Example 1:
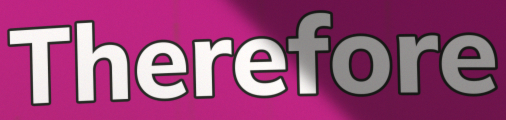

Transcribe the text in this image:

Therefore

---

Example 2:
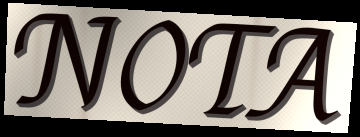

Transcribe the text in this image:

NOTA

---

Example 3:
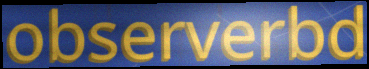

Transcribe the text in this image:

observerbd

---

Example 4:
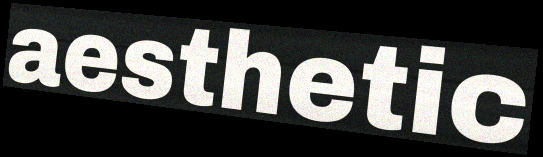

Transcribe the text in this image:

aesthetic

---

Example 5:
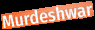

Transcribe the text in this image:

Murdeshwar